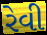
રેવી